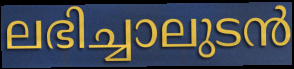
ലഭിച്ചാലുടൻ